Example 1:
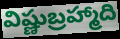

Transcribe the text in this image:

విష్ణుబ్రహ్మాది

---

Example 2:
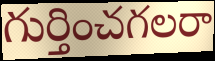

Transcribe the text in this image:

గుర్తించగలరా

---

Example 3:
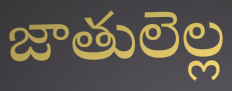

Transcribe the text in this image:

జాతులెల్ల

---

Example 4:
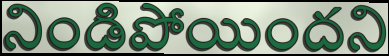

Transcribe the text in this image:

నిండిపోయిందని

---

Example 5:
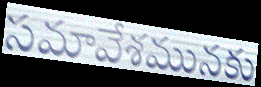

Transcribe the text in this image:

సమావేశమునకు